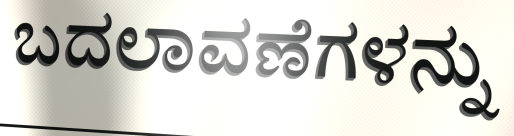
ಬದಲಾವಣೆಗಳನ್ನು